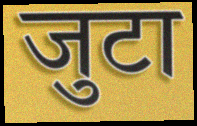
जुटा